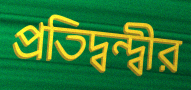
প্রতিদ্বন্দ্বীর